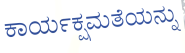
ಕಾರ್ಯಕ್ಷಮತೆಯನ್ನು